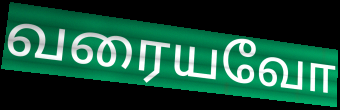
வரையவோ